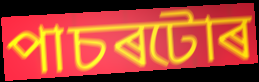
পাচৰটোৰ